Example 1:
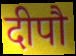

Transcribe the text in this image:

दीपौ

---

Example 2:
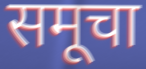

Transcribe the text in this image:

समूचा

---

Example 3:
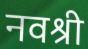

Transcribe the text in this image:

नवश्री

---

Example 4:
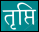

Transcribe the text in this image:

तृप्ति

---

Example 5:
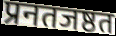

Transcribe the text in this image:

प्रनतजष्ठत